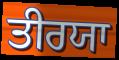
ਤੀਰਯਾ